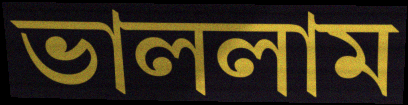
ভাললাম